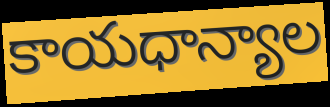
కాయధాన్యాల